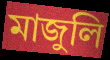
মাজুলি